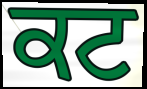
ਕਟ